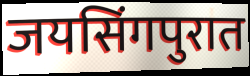
जयसिंगपुरात